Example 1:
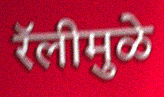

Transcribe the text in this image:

रॅलीमुळे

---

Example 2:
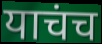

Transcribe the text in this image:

याचंच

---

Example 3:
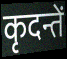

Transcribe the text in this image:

कृदन्तें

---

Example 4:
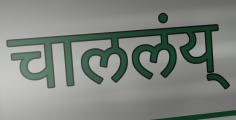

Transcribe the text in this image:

चाललंय्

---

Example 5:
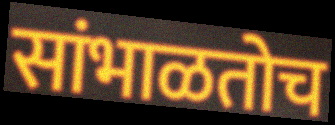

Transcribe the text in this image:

सांभाळतोच